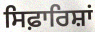
ਸਿਫ਼ਾਰਿਸ਼ਾਂ